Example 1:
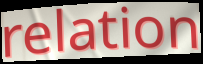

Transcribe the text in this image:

relation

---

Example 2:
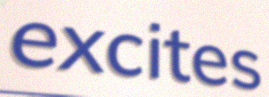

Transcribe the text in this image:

excites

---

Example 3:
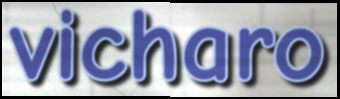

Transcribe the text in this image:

vicharo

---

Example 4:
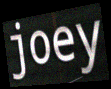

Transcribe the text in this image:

joey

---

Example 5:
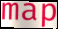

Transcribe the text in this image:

map